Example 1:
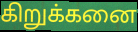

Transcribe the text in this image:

கிறுக்கனை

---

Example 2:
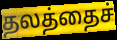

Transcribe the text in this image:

தலத்தைச்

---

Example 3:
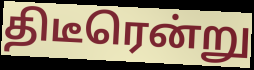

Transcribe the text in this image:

திடீரென்று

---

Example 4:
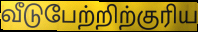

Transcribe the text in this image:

வீடுபேற்றிற்குரிய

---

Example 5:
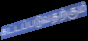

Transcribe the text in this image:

கட்டப்படுவதற்கும்